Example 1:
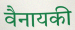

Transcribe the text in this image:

वैनायकी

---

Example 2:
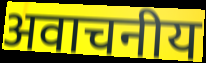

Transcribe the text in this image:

अवाचनीय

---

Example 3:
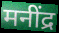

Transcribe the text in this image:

मनींद्र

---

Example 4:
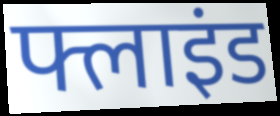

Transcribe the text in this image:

फ्लाइंड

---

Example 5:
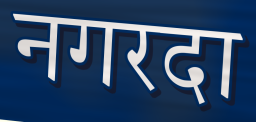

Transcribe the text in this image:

नगरदा